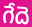
గేదె